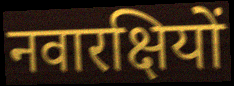
नवारक्षियों